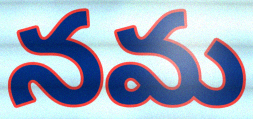
నమ